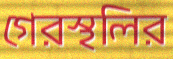
গেরস্থলির